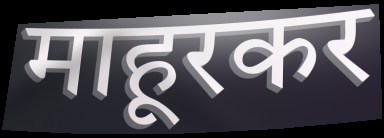
माहूरकर